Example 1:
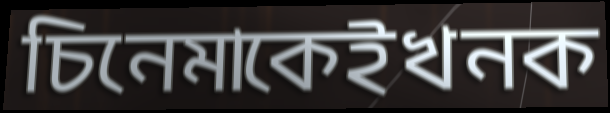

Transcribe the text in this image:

চিনেমাকেইখনক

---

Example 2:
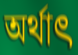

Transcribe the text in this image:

অৰ্থাৎ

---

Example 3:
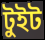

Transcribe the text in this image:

টুইট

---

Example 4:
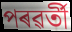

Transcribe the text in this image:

পৰৱৰ্তী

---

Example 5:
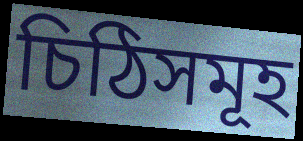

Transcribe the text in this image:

চিঠিসমূহ